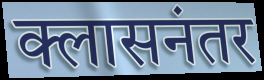
क्लासनंतर